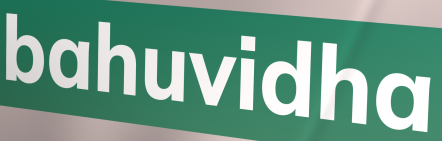
bahuvidha